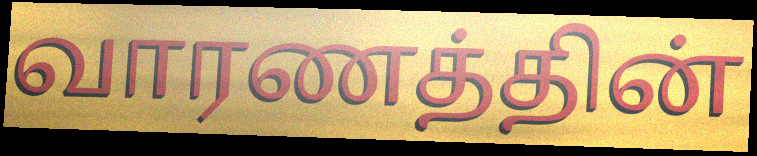
வாரணத்தின்